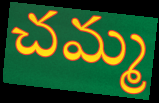
చమ్మ